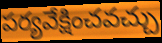
పర్యవేక్షించవచ్చు